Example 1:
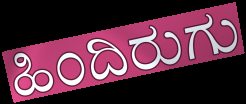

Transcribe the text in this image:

ಹಿಂದಿರುಗು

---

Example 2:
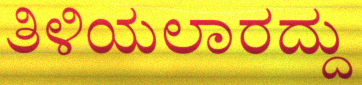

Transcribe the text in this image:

ತಿಳಿಯಲಾರದ್ದು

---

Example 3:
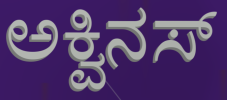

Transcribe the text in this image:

ಅಕ್ವಿನಸ್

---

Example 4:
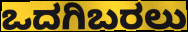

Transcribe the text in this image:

ಒದಗಿಬರಲು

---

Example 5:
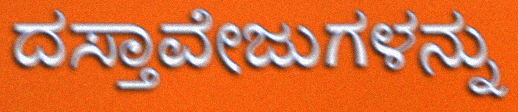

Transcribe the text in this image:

ದಸ್ತಾವೇಜುಗಳನ್ನು